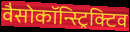
वैसोकॉन्स्ट्रिक्टिव